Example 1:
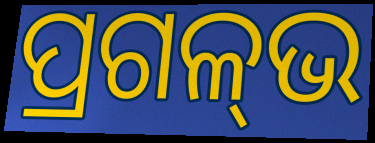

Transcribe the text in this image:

ପ୍ରଗଳ୍‌ଭ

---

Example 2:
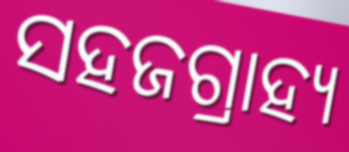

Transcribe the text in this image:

ସହଜଗ୍ରାହ୍ୟ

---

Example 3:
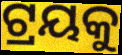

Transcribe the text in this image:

ଟ୍ରୟକୁ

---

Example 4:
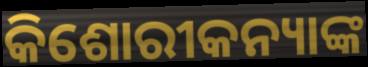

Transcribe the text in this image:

କିଶୋରୀକନ୍ୟାଙ୍କ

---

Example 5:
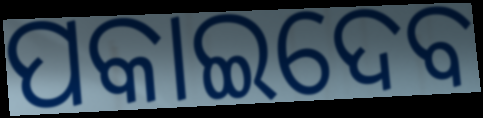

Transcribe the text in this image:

ପକାଇଦେବ